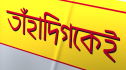
তাঁহাদিগকেই